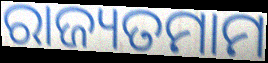
ରାଜ୍ୟତମାମ